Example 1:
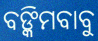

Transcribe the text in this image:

ବଙ୍କିମବାବୁ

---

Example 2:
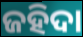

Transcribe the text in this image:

ଜହିଦା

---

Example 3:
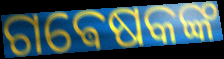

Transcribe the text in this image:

ଗଵେଷକଙ୍କ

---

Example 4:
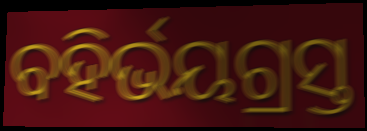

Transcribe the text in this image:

ବହିର୍ଭୟଗ୍ରସ୍ତ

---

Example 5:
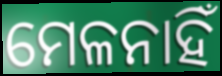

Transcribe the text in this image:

ମେଳନାହିଁ